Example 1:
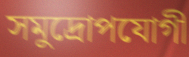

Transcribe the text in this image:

সমুদ্রোপযোগী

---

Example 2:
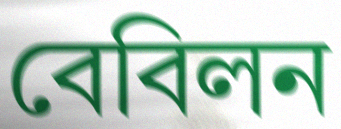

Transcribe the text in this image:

বেবিলন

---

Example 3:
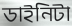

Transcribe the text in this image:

ডাইনিটা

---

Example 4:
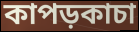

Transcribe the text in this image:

কাপড়কাচা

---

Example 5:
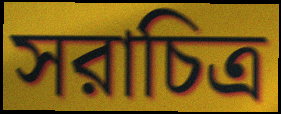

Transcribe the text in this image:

সরাচিত্র